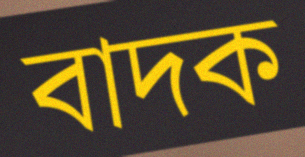
বাদক